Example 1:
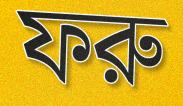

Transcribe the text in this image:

ফরু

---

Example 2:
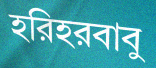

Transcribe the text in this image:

হরিহরবাবু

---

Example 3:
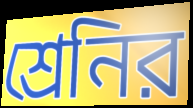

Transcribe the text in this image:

শ্রেনির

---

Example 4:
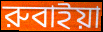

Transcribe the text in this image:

রুবাইয়া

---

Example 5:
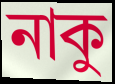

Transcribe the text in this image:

নাকু